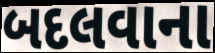
બદલવાના